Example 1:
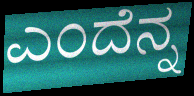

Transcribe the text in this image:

ಎಂದೆನ್ನ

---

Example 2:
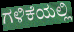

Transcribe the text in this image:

ಗಳಿಕೆಯಲ್ಲಿ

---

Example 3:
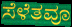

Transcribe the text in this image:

ಸೆಳೆತವೂ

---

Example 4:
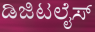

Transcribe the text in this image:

ಡಿಜಿಟಲೈಸ್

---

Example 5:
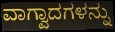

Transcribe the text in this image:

ವಾಗ್ವಾದಗಳನ್ನು